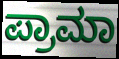
ಪ್ರಾಮಾ